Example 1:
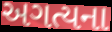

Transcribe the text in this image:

અગત્યના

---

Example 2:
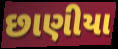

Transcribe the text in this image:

છાણીયા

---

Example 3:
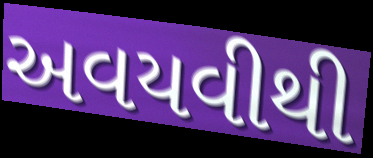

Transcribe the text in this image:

અવયવીથી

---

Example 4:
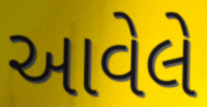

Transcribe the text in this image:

આવેલે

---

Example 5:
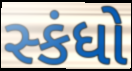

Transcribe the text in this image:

સ્કંધો